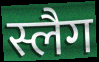
स्लैग